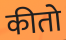
कीतो